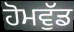
ਹੋਮਵੁੱਡ